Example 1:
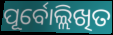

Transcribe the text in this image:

ପୂର୍ବୋଲ୍ଲିଖିତ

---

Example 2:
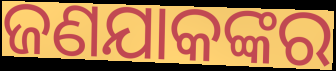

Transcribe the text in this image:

ଜଣଯାକଙ୍କର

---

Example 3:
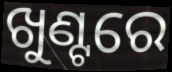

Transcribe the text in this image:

ଖୁଣ୍ଟରେ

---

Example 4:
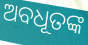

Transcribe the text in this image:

ଅବଧୂତଙ୍କ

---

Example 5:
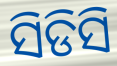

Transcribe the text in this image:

ସିଡିସି